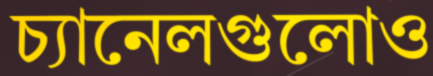
চ্যানেলগুলোও